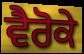
ਵੈਰੋਕੇ